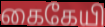
கைகேயி